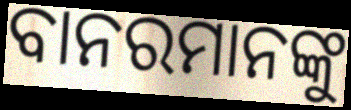
ବାନରମାନଙ୍କୁ